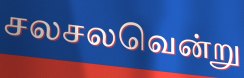
சலசலவென்று